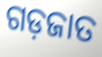
ଗଡ଼ଜାତ